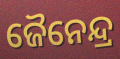
ଜୈନେନ୍ଦ୍ର